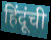
हिंदूंची